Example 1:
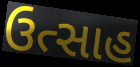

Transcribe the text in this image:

ઉત્સાહ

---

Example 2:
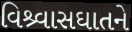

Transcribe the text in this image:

વિશ્ર્વાસઘાતને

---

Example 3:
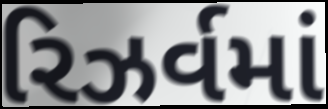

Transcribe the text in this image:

રિઝર્વમાં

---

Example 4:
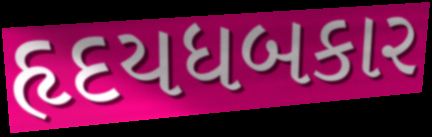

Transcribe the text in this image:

હૃદયધબકાર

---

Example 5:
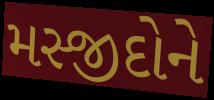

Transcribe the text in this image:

મસ્જીદોને